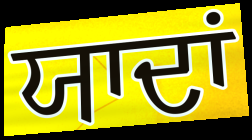
ਯਾਦਾਂ